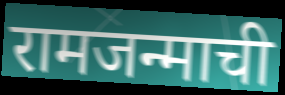
रामजन्माची